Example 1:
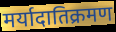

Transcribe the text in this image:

मर्यादातिक्रमण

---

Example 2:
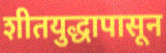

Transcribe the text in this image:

शीतयुद्धापासून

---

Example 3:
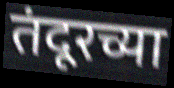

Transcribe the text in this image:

तंदूरच्या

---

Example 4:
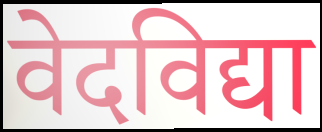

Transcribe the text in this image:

वेदविद्या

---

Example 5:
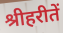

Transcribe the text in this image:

श्रीहरीतें